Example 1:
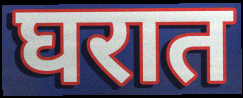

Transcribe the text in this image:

घरात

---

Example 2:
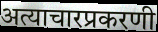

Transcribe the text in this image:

अत्याचारप्रकरणी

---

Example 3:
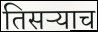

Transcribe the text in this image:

तिसऱ्याच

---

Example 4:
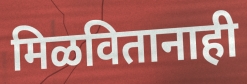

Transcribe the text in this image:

मिळवितानाही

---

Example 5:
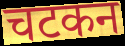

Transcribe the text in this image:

चटकन